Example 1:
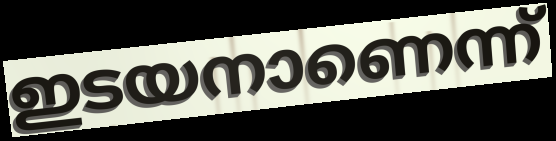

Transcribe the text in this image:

ഇടയനാണെന്ന്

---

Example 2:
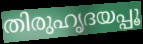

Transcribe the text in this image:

തിരുഹൃദയപ്പൂ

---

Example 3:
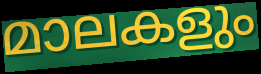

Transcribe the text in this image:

മാലകളും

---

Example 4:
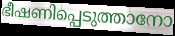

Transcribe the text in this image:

ഭീഷണിപ്പെടുത്താനോ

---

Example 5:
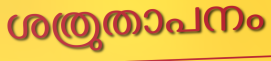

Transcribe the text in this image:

ശത്രുതാപനം